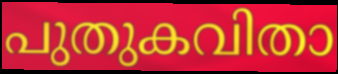
പുതുകവിതാ